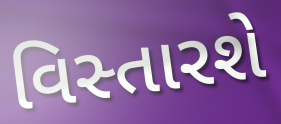
વિસ્તારશે